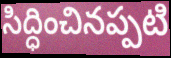
సిద్ధించినప్పటి